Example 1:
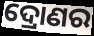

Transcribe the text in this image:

ଦ୍ରୋଣର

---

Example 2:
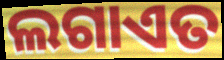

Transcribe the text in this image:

ଲଗାଏତ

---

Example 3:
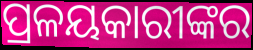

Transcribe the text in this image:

ପ୍ରଳୟକାରୀଙ୍କର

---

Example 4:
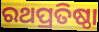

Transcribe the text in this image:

ରଥପ୍ରତିଷ୍ଠା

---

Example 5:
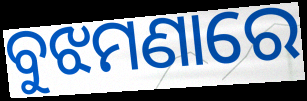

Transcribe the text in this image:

ବୁଝମଣାରେ